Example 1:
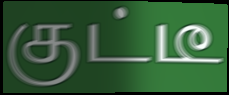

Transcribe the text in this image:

குட்டீ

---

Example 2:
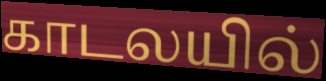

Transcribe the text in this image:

காடலயில்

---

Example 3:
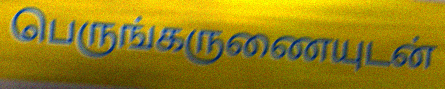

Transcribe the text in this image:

பெருங்கருணையுடன்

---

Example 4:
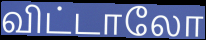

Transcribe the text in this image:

விட்டாலோ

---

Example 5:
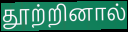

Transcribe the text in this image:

தூற்றினால்